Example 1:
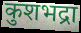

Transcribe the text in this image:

कुशभद्रा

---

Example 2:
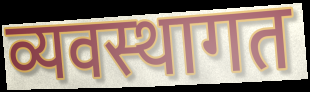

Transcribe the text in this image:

व्यवस्थागत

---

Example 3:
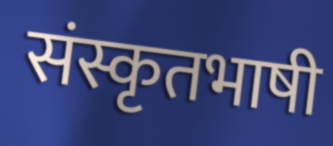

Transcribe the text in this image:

संस्कृतभाषी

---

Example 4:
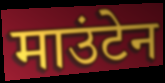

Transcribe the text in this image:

माउंटेन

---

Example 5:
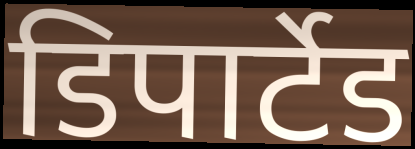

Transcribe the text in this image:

डिपार्टेड